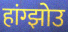
हांग्झोउ